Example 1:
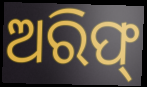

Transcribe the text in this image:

ଅରିଫ୍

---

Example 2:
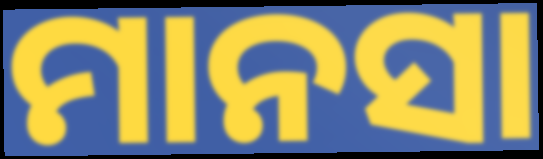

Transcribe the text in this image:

ମାନସା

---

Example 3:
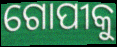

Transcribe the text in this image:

ଗୋପୀକୁ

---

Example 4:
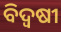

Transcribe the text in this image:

ବିଦ୍ୱଷୀ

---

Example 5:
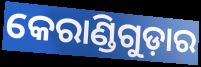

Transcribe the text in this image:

କେରାଣ୍ଡିଗୁଡ଼ାର